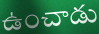
ఉంచాడు